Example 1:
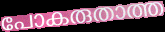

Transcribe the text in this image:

പോകരുതാത്ത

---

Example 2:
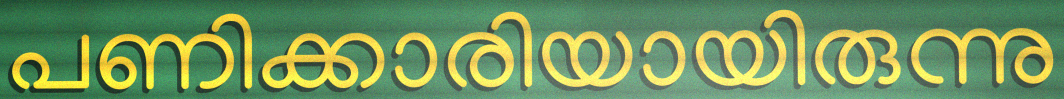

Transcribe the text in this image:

പണിക്കാരിയായിരുന്നു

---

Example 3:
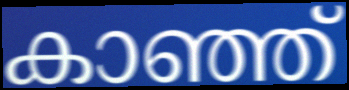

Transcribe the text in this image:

കാഞ്ഞ്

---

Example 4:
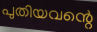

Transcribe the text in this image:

പുതിയവന്റെ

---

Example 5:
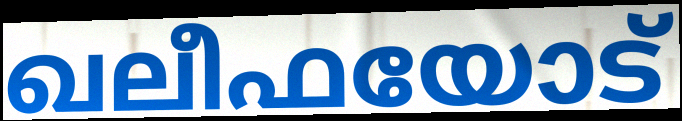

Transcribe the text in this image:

ഖലീഫയോട്